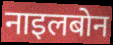
नाइलबोन